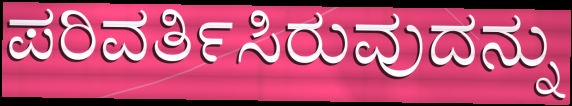
ಪರಿವರ್ತಿಸಿರುವುದನ್ನು